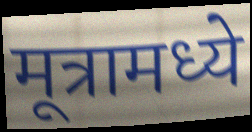
मूत्रामध्ये